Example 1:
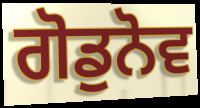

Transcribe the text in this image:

ਗੋਡੁਨੋਵ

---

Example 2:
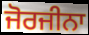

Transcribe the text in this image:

ਜੋਰਜੀਨਾ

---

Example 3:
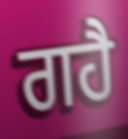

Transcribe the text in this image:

ਗਹੈ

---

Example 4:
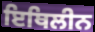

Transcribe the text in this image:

ਇਥਿਲੀਨ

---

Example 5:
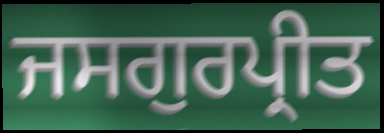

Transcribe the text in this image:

ਜਸਗੁਰਪ੍ਰੀਤ